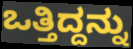
ಒತ್ತಿದ್ದನ್ನು